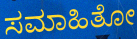
ಸಮಾಹಿತೋ